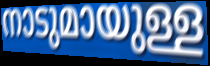
നാടുമായുള്ള